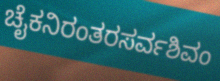
ಚೈಕನಿರಂತರಸರ್ವಶಿವಂ